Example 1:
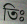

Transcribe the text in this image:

তিঃ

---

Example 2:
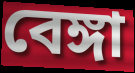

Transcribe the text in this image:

বেঙ্গা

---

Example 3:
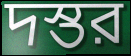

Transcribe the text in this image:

দস্তর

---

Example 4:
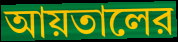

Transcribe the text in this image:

আয়তালের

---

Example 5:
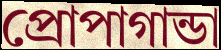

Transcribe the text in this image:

প্রোপাগান্ডা